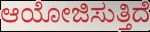
ಆಯೋಜಿಸುತ್ತಿದೆ